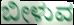
ಬೀಳುವ